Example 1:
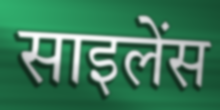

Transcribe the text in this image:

साइलेंस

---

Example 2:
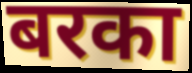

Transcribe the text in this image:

बरका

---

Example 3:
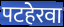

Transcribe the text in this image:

पटहेरवा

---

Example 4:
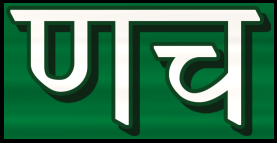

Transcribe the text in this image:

णच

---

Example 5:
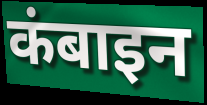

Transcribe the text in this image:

कंबाइन